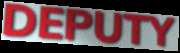
DEPUTY